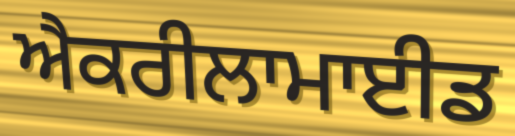
ਐਕਰੀਲਾਮਾਈਡ